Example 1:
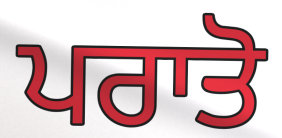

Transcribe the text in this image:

ਪਰਾਤੋ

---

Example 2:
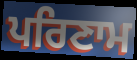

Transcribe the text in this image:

ਪਰਿਣਾਮ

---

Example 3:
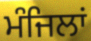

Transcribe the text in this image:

ਮੰਜਿਲਾਂ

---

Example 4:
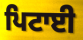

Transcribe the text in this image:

ਪਿਟਾਈ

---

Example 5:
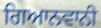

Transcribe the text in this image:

ਗਿਆਨਵਾਨੀ